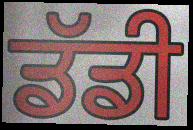
ਡੱਡੀ